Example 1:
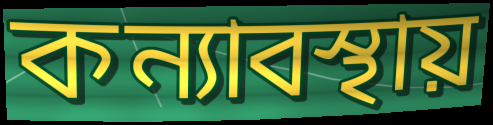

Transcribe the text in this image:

কন্যাবস্থায়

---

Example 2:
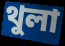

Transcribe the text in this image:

থুলা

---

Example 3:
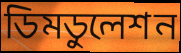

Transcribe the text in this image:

ডিমডুলেশন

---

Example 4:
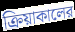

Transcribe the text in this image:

ক্রিয়াকালের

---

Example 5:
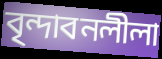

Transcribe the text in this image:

বৃন্দাবনলীলা